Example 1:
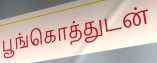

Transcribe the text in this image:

பூங்கொத்துடன்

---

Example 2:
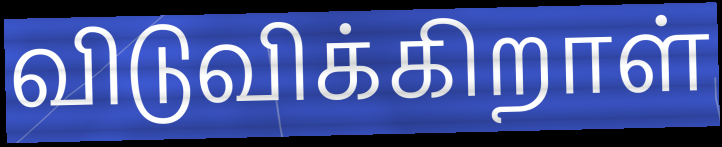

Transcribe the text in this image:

விடுவிக்கிறாள்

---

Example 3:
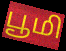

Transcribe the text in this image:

பூமி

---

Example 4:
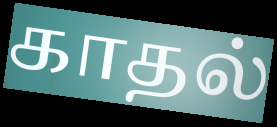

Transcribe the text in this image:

காதல்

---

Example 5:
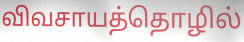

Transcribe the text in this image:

விவசாயத்தொழில்